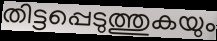
തിട്ടപ്പെടുത്തുകയും